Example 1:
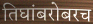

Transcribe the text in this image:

तिघांबरोबरच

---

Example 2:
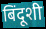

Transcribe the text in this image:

बिंदूशी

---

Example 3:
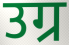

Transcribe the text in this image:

उग्र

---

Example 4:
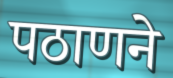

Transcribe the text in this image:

पठाणने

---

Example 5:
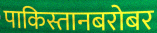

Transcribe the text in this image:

पाकिस्तानबरोबर